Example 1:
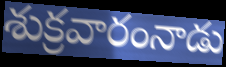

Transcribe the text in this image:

శుక్రవారంనాడు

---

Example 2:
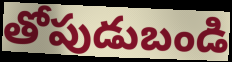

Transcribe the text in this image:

తోపుడుబండి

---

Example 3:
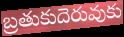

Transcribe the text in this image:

బ్రతుకుదెరువుకు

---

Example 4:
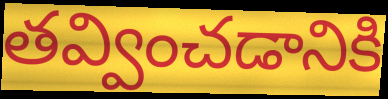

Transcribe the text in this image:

తవ్వించడానికి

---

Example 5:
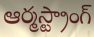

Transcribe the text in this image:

ఆర్మస్ట్రాంగ్